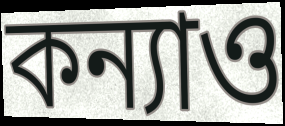
কন্যাও